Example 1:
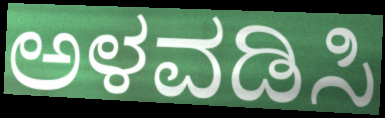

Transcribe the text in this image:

ಅಳವಡಿಸಿ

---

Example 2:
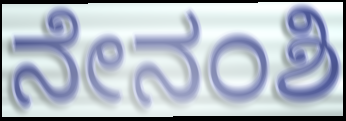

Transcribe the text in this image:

ನೇನಂಶಿ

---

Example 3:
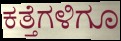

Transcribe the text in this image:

ಕತ್ತೆಗಳಿಗೂ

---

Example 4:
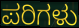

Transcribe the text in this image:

ಪರಿಗಳು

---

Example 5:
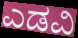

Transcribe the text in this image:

ಎಡವಿ